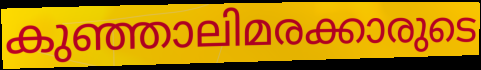
കുഞ്ഞാലിമരക്കാരുടെ